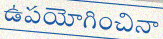
ఉపయోగించినా